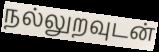
நல்லுறவுடன்